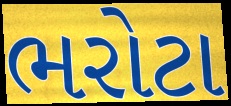
ભરોટા